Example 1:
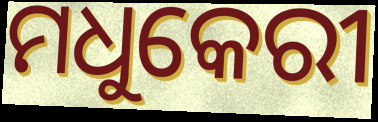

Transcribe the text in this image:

ମଧୁକେରୀ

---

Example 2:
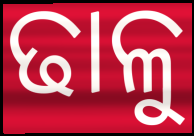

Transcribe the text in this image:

ଢାଳୁ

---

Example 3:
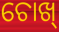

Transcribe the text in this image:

ଚୋଖ୍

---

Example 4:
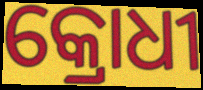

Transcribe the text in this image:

କ୍ରୋଧୀ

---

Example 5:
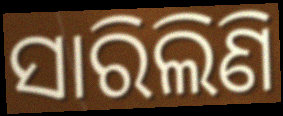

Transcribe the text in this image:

ସାରିଲିଣି